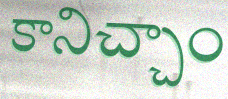
కానిచ్చాం